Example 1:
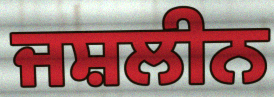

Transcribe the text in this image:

ਜਸ਼ਲੀਨ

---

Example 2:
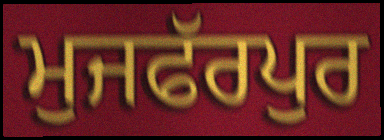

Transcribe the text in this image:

ਮੁਜਫੱਰਪੁਰ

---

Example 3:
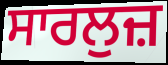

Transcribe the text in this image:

ਸਾਰਲੁਜ਼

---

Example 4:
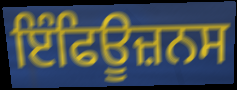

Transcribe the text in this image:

ਇੰਫਿਊਜ਼ਨਸ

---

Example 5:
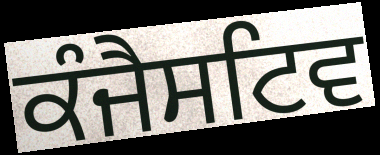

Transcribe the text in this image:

ਕੰਜੈਸਟਿਵ